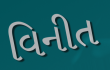
વિનીત